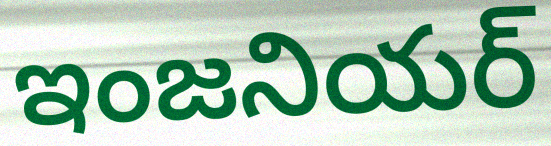
ఇంజనియర్